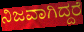
ನಿಜವಾಗಿದ್ದರೆ